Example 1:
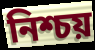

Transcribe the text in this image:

নিশ্চয়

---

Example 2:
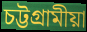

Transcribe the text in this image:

চট্টগ্ৰামীয়া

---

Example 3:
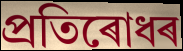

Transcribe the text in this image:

প্ৰতিৰোধৰ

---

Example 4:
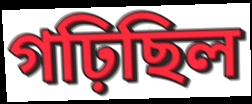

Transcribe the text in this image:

গঢ়িছিল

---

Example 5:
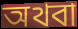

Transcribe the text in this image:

অথবা